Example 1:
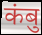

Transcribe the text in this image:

कंबु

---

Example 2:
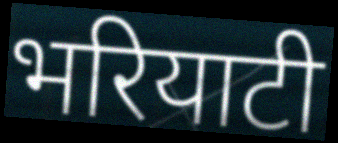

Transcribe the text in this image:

भरियाटी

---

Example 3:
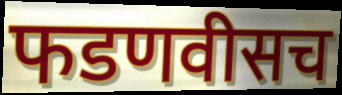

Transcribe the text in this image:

फडणवीसच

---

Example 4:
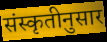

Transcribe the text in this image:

संस्कृतीनुसार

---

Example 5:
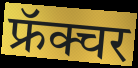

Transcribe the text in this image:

फ्रॅक्चर